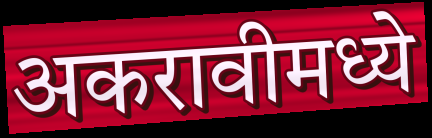
अकरावीमध्ये